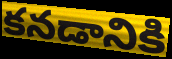
కనడానికి